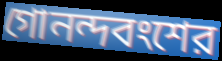
গোনন্দবংশের